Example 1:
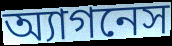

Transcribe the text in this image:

অ্যাগনেস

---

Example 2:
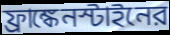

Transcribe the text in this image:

ফ্রাঙ্কেনস্টাইনের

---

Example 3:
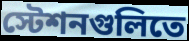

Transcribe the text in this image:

স্টেশনগুলিতে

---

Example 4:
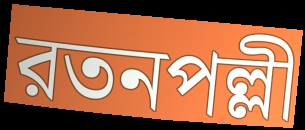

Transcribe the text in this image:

রতনপল্লী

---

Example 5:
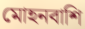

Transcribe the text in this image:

মোহনবাশি